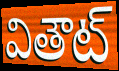
వితౌట్